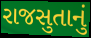
રાજસુતાનું